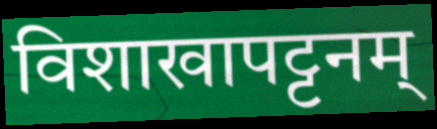
विशाखापट्टनम्